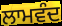
ਲਾਮਵੰਦ